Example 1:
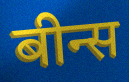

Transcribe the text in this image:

बीन्‍स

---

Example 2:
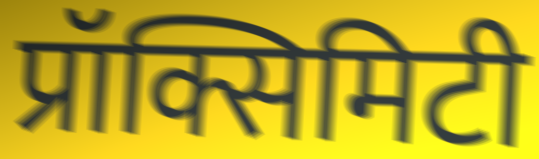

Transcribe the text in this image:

प्रॉक्सिमिटी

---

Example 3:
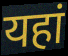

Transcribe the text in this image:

यहां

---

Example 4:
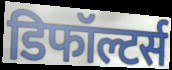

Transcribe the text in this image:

डिफॉल्टर्स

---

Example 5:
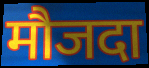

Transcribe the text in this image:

मौजदा